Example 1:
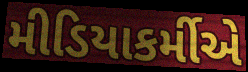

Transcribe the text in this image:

મીડિયાકર્મીએ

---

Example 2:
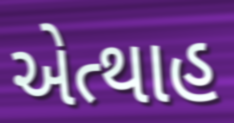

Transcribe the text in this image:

એત્થાહ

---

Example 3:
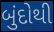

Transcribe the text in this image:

બુંદોથી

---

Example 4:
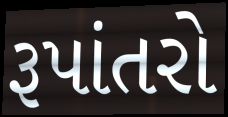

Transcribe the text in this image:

રૂપાંતરો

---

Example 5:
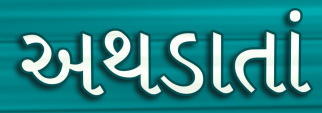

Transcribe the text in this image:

અથડાતાં